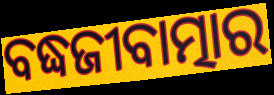
ବଦ୍ଧଜୀବାତ୍ମାର